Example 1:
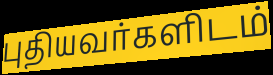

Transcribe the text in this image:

புதியவர்களிடம்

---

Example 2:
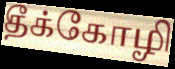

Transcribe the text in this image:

தீக்கோழி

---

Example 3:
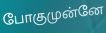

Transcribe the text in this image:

போகுமுன்னே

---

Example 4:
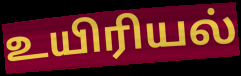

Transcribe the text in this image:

உயிரியல்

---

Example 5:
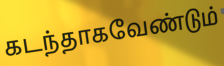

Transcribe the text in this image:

கடந்தாகவேண்டும்